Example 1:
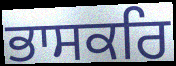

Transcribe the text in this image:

ਭਾਸਕਰਿ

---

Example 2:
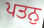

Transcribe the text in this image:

ਪਤਨੁ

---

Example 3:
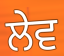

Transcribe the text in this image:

ਲੇਵ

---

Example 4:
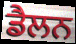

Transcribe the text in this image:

ਡੈਲਨ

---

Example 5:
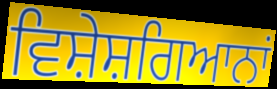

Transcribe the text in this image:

ਵਿਸ਼ੇਸ਼ਗਿਆਨਾਂ